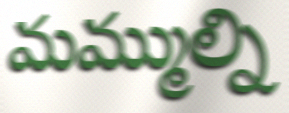
మమ్ముల్ని